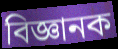
বিজ্ঞানক